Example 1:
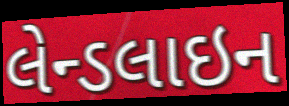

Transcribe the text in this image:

લેન્ડલાઇન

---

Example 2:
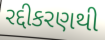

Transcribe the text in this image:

રદ્દીકરણથી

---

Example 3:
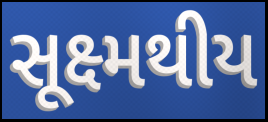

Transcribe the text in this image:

સૂક્ષ્મથીય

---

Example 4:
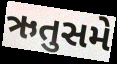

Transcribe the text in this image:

ઋતુસમે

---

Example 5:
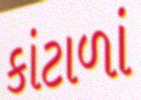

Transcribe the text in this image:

કાંટાળાં